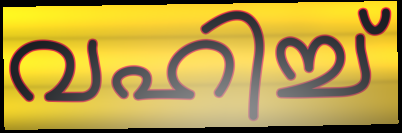
വഹിച്ച്